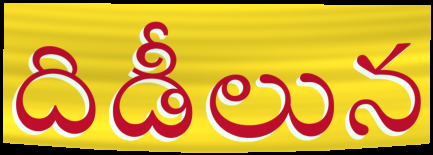
దిడీలున